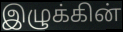
இழுக்கின்